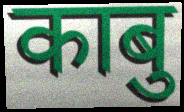
काबु